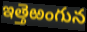
ఇత్తెఱంగున